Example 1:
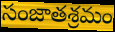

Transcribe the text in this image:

సంజాతశ్రమం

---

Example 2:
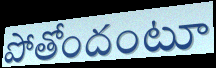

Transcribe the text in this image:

పోతోందంటూ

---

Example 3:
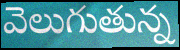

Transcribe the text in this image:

వెలుగుతున్న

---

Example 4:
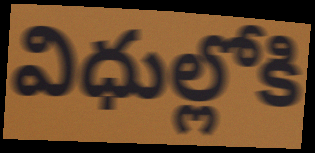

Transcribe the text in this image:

విధుల్లోకి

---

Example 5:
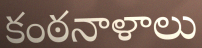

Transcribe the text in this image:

కంఠనాళాలు